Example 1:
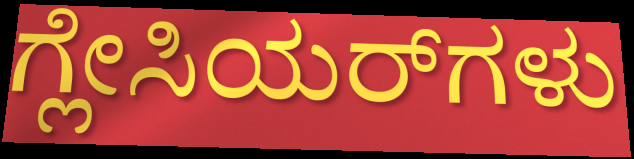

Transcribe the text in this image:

ಗ್ಲೇಸಿಯರ್‌ಗಳು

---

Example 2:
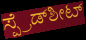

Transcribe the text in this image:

ಸ್ಪ್ರೆಡ್‌ಶೀಟ್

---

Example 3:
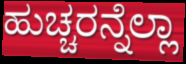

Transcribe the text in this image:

ಹುಚ್ಚರನ್ನೆಲ್ಲಾ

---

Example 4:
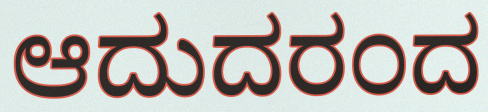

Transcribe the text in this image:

ಆದುದರಂದ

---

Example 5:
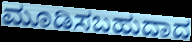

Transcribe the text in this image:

ಮೂಡಿಸಬಹುದಾದ